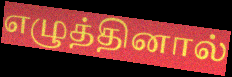
எழுத்தினால்